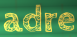
adre